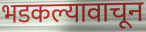
भडकल्यावाचून